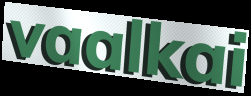
vaalkai